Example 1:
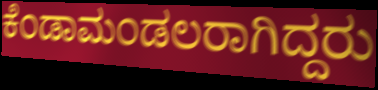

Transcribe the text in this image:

ಕೆಂಡಾಮಂಡಲರಾಗಿದ್ದರು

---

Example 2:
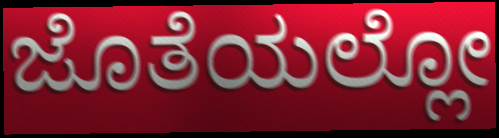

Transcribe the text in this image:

ಜೊತೆಯಲ್ಲೋ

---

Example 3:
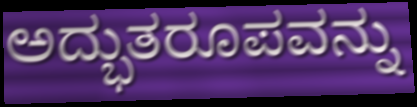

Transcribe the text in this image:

ಅದ್ಭುತರೂಪವನ್ನು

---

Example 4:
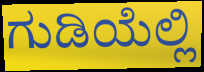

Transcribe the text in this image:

ಗುಡಿಯೆಲ್ಲಿ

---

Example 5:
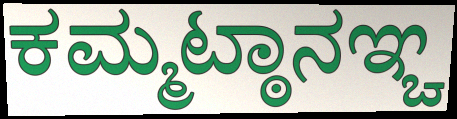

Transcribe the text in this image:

ಕಮ್ಮಟ್ಠಾನಞ್ಚ